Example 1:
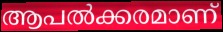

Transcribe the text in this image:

ആപൽക്കരമാണ്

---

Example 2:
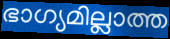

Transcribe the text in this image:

ഭാഗ്യമില്ലാത്ത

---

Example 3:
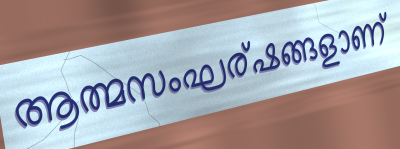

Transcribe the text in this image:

ആത്മസംഘര്ഷങ്ങളാണ്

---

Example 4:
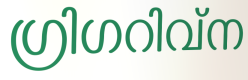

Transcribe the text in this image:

ഗ്രിഗറിവ്ന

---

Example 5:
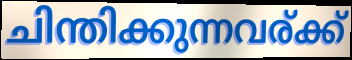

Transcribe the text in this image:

ചിന്തിക്കുന്നവര്ക്ക്